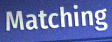
Matching